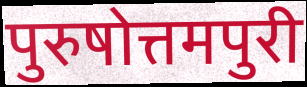
पुरुषोत्तमपुरी